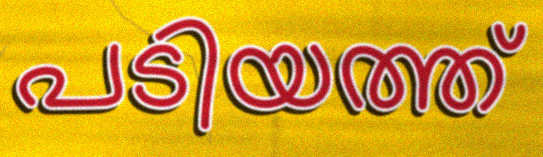
പടിയത്ത്